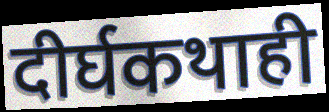
दीर्घकथाही